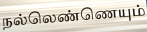
நல்லெண்ணெயும்